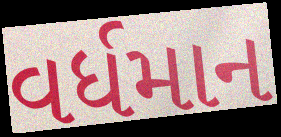
વર્ધમાન